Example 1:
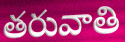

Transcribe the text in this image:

తరువాతి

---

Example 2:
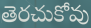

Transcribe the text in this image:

తెరచుకోవు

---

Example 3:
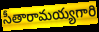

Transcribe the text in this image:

సీతారామయ్యగారి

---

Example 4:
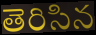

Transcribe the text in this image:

తెరిసిన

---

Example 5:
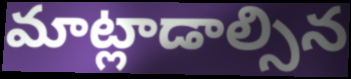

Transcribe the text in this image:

మాట్లాడాల్సిన